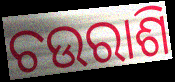
ଚଉରାଶି